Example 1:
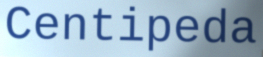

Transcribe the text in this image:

Centipeda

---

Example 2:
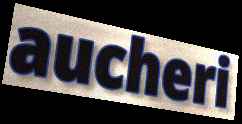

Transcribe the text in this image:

aucheri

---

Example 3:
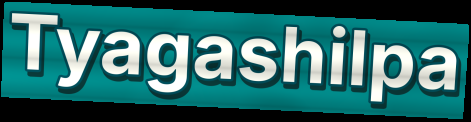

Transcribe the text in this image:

Tyagashilpa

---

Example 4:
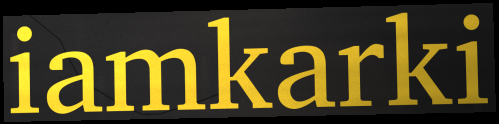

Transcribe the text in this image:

iamkarki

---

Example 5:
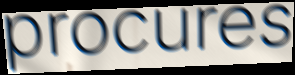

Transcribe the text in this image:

procures